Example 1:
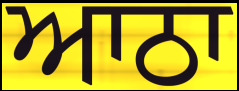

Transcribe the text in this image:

ਆਠਾ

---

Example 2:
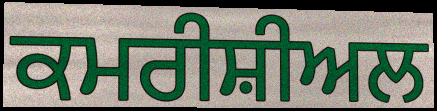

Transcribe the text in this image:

ਕਮਰੀਸ਼ੀਅਲ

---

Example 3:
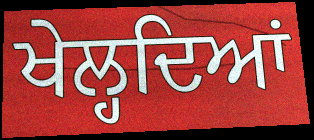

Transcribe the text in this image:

ਖੇਲ੍ਹਦਿਆਂ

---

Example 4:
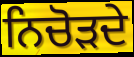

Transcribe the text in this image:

ਨਿਚੋੜਦੇ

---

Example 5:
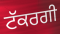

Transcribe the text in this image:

ਟੱਕਰਗੀ